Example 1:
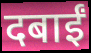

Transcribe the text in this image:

दबाईं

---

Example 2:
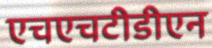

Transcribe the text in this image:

एचएचटीडीएन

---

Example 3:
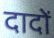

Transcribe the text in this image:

दादों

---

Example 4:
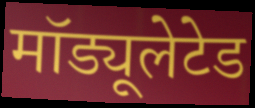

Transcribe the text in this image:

मॉड्यूलेटेड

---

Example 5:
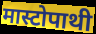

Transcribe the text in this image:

मास्टोपाथी